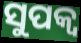
ସୁପକ୍ବ